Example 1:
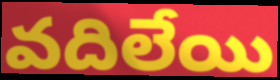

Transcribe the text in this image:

వదిలేయి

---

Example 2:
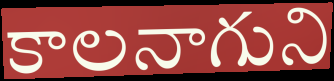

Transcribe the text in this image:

కాలనాగుని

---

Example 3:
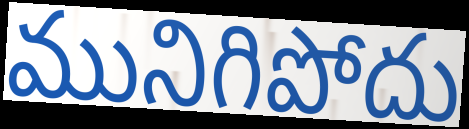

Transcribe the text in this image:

మునిగిపోదు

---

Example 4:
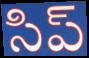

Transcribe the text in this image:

సిప్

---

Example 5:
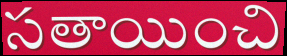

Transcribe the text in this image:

సతాయించి